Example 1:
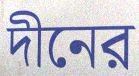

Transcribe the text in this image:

দীনের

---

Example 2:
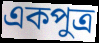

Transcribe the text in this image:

একপুত্র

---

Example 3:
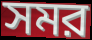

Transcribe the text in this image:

সমর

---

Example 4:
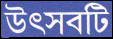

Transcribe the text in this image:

উৎসবটি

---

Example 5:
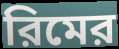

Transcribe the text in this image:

রিমের